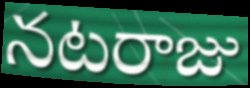
నటరాజు